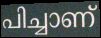
പിച്ചാണ്